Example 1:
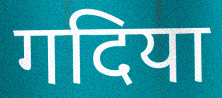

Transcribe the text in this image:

गदिया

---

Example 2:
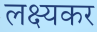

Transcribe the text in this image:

लक्ष्यकर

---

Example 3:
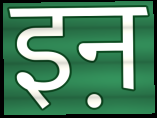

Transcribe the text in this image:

इऩ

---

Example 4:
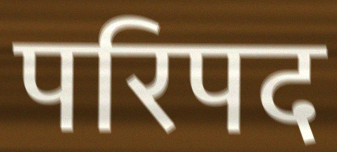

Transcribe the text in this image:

परिपद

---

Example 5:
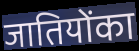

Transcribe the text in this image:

जातियोंका